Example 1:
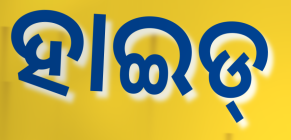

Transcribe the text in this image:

ହାଇଡ୍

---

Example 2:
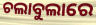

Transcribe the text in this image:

ଚଲାବୁଲାରେ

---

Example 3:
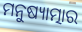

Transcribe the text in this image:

ମନୁଷ୍ୟାତ୍ମାର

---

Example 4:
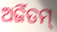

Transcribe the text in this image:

ଅର୍ଜିତମ୍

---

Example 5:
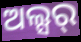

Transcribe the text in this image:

ଅଲ୍ସର୍